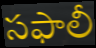
సఫాలీ